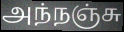
அந்நஞ்சு